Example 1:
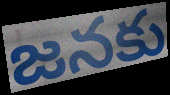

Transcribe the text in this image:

జనకు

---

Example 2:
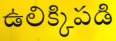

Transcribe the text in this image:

ఉలిక్కిపడి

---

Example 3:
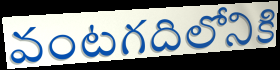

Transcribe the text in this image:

వంటగదిలోనికి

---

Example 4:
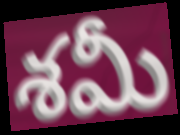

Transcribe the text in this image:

శమీ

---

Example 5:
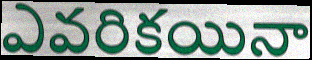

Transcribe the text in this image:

ఎవరికయినా